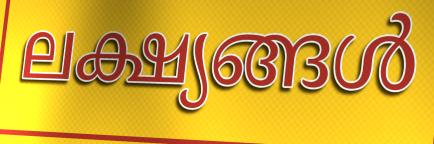
ലക്ഷ്യങ്ങൾ